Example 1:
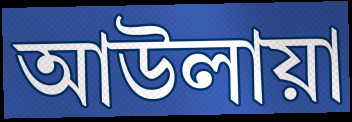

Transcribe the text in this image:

আউলায়া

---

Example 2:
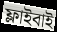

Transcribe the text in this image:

ফ্লাইবাই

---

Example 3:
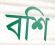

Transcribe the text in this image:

বশি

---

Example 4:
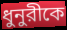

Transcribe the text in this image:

ধুনুরীকে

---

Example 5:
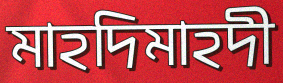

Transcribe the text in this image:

মাহদিমাহদী